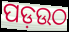
ପଡ଼ଉଠ